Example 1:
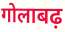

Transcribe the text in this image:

गोलाबढ़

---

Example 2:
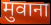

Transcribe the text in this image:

मुवाना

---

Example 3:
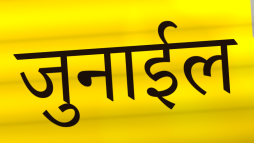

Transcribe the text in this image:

जुनाईल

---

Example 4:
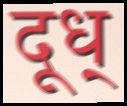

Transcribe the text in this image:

दूध्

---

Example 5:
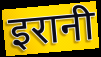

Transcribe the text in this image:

इरानी